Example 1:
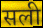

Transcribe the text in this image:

सली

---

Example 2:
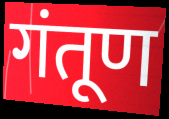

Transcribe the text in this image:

गंतूण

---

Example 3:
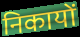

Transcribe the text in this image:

निकायों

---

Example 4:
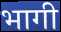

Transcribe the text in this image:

भागी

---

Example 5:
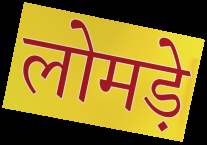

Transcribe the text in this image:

लोमड़े